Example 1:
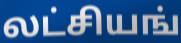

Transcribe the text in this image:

லட்சியங்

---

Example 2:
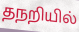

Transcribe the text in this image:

தநறியில்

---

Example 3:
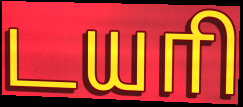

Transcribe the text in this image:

டயரி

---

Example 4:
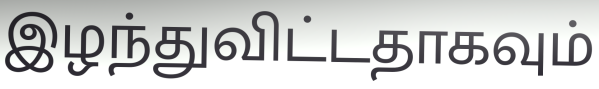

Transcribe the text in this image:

இழந்துவிட்டதாகவும்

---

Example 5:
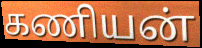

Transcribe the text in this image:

கணியன்